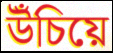
উঁচিয়ে